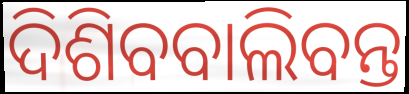
ଦିଶିବବାଲିବନ୍ତ